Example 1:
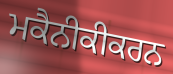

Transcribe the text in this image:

ਮਕੈਨੀਕੀਕਰਨ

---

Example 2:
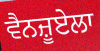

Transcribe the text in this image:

ਵੈਨਜ਼ੂਏਲਾ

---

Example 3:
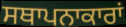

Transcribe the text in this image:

ਸਥਾਪਨਾਕਾਰਾਂ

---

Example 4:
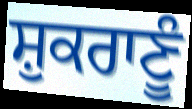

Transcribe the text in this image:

ਸ਼ੁਕਰਾਣੂੰ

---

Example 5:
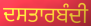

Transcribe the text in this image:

ਦਸਤਾਰਬੰਦੀ